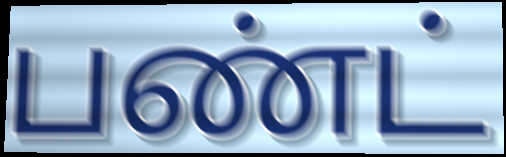
பண்ட்